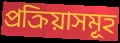
প্ৰক্ৰিয়াসমূহ